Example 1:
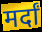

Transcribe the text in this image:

मर्दां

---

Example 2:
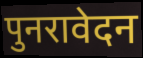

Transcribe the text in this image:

पुनरावेदन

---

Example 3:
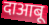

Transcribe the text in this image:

दाआबू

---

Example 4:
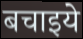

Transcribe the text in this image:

बचाइये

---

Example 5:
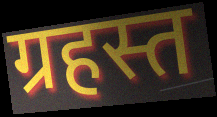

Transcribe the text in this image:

ग्रहस्त